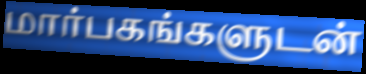
மார்பகங்களுடன்